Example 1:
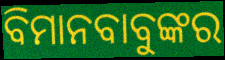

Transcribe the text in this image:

ବିମାନବାବୁଙ୍କର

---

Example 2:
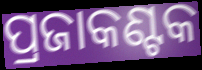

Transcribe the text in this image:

ପ୍ରଜାକଣ୍ଟକ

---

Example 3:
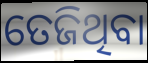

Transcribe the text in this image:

ତେଜିଥିବା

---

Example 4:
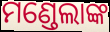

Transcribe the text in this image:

ମଣ୍ଡେଲାଙ୍କ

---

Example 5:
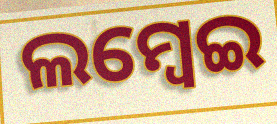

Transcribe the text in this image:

ଲମ୍ଵେଇ